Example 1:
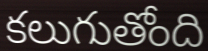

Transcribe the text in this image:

కలుగుతోంది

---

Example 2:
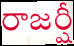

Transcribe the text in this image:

రాజర్షీ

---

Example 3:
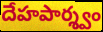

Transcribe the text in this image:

దేహపార్శ్వం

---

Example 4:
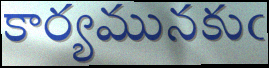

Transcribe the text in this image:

కార్యమునకుఁ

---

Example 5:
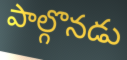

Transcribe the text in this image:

పాల్గొనడు